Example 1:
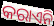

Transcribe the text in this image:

କରାଏନି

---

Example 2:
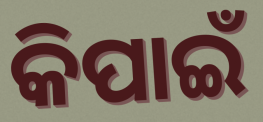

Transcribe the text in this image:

କିପାଇଁ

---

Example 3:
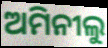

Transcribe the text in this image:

ଅମିନୀଲୁ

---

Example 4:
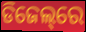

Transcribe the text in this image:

ଡିଜେଲ୍‌ରେ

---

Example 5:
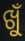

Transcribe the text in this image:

ଖୁଁ